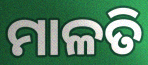
ମାଳତି